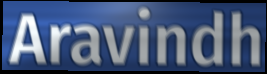
Aravindh